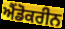
ਐਂਡੋਕਰੀਨ